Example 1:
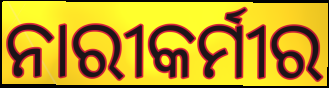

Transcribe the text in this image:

ନାରୀକର୍ମୀର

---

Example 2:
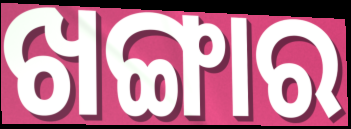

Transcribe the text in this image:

ଖଙ୍ଗାର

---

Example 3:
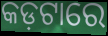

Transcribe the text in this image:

କଡ଼ଟାରେ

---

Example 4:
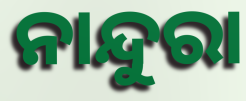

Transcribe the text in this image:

ନାନ୍ଦୁରା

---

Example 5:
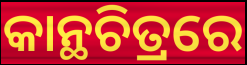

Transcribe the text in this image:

କାନ୍ଥଚିତ୍ରରେ